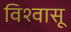
विश्वासू